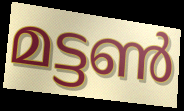
മട്ടൺ